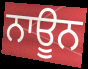
ਨਾਊਨ